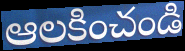
ఆలకించండి